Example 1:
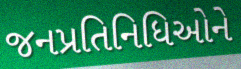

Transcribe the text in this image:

જનપ્રતિનિધિઓને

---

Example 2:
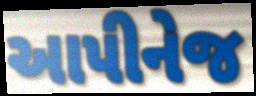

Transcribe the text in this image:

આપીનેજ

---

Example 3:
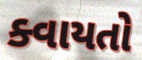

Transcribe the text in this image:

ક્વાયતો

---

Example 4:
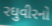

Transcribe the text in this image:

રઘુવીરનો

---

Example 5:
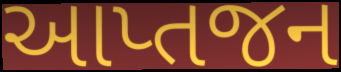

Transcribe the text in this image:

આપ્તજન